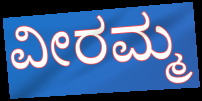
ವೀರಮ್ಮ